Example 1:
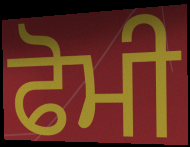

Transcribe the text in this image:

ਫੋਮੀ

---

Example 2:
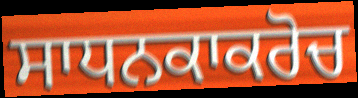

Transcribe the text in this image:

ਸਾਧਨਕਾਕਰੋਚ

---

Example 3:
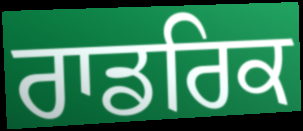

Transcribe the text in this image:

ਰਾਡਰਿਕ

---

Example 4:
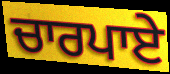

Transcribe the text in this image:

ਚਾਰਪਾਏ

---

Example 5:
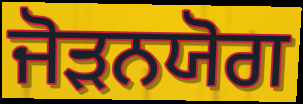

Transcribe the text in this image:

ਜੋੜਨਯੋਗ